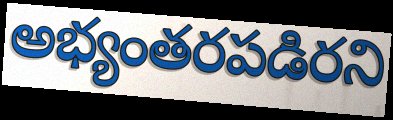
అభ్యంతరపడిరని